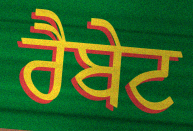
ਰੈਬੇਟ